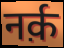
नर्क़